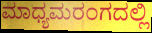
ಮಾಧ್ಯಮರಂಗದಲ್ಲಿ